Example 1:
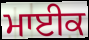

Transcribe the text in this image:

ਮਾਈਕ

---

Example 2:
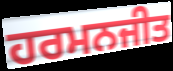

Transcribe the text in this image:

ਹਰਮਨਜੀਤ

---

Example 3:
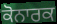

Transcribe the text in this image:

ਕੋਨਾਰਕ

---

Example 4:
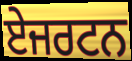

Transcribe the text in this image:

ਏਜਰਟਨ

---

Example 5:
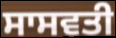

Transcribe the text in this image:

ਸਾਸਵਤੀ